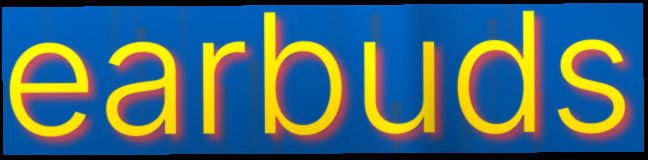
earbuds